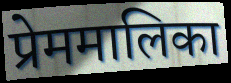
प्रेममालिका